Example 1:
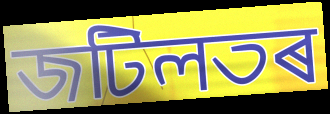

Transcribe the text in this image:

জটিলতৰ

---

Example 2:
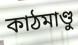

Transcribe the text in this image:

কাঠমাণ্ডু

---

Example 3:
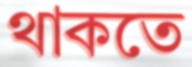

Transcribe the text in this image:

থাকতে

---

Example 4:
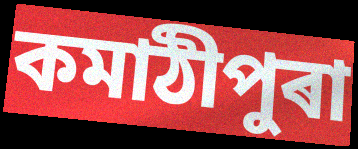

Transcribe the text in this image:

কমাঠীপুৰা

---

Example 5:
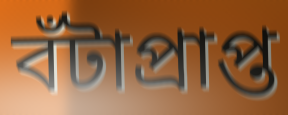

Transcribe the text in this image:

বঁটাপ্ৰাপ্ত